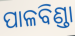
ପାଳବିଣ୍ଡା